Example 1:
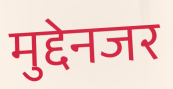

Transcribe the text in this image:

मुद्देनजर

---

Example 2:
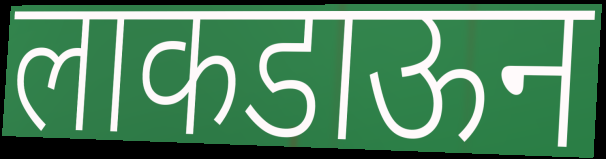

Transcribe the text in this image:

लाकडाऊन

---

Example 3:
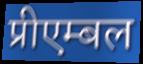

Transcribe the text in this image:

प्रीएम्बल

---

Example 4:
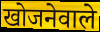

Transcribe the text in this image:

खोजनेवाले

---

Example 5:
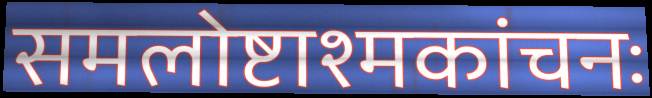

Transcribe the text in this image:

समलोष्टाश्मकांचनः